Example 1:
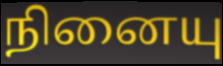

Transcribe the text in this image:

நினையு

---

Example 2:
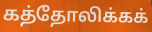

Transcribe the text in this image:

கத்தோலிக்கக்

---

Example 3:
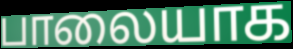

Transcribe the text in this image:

பாலையாக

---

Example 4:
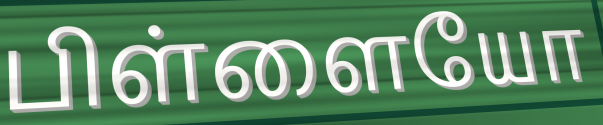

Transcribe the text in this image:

பிள்ளையோ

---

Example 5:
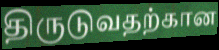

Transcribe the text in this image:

திருடுவதற்கான